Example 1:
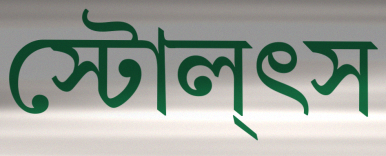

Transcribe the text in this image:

স্টোল্ৎস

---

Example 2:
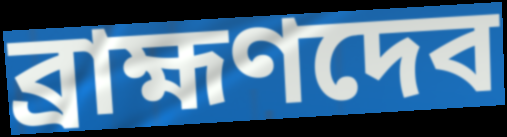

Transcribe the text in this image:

ব্রাহ্মণদেব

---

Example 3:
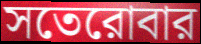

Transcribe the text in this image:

সতেরোবার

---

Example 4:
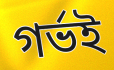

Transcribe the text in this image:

গর্ভই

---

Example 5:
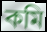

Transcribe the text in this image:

কমি